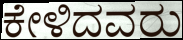
ಕೇಳಿದವರು